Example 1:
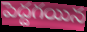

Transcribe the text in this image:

పెద్దగయిన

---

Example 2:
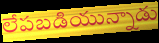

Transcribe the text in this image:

లేపబడియున్నాడు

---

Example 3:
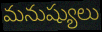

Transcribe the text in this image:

మనుష్యులు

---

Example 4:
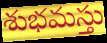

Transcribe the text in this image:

శుభమస్తు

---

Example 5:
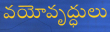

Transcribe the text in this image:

వయోవృద్ధులు